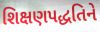
શિક્ષણપદ્ધતિને